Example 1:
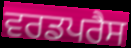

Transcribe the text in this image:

ਵਰਡਪਰੈਸ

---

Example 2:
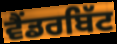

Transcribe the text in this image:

ਵੈਂਡਰਬਿੱਟ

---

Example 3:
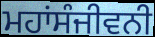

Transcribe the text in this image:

ਮਹਾਂਸੰਜੀਵਨੀ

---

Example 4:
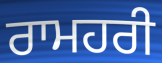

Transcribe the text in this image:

ਰਾਮਹਰੀ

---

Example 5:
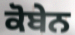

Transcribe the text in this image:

ਕੋਬੇਨ